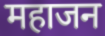
महाजन